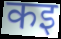
कइ